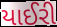
યાઈરી